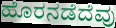
ಹೊರನಡೆದೆವು